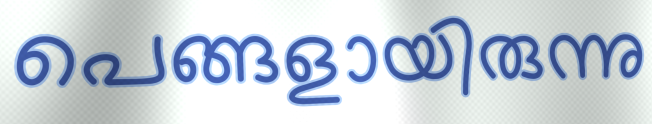
പെങ്ങളായിരുന്നു